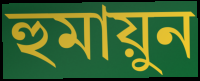
হুমায়ুন